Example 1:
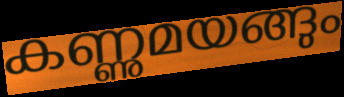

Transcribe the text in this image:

കണ്ണുമയങ്ങും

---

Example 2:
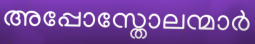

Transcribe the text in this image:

അപ്പോസ്തോലന്മാർ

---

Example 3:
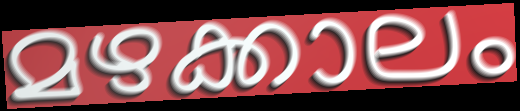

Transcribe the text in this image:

മഴക്കാലം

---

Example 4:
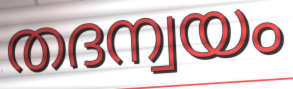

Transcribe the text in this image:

തദന്വയം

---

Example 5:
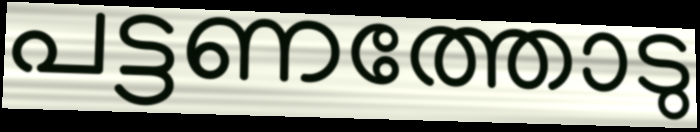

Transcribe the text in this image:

പട്ടണത്തോടു